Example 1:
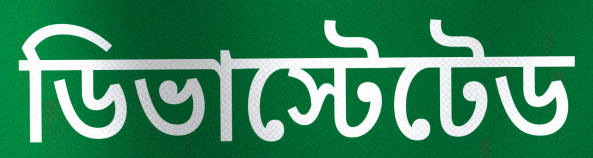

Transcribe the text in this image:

ডিভাস্টেটেড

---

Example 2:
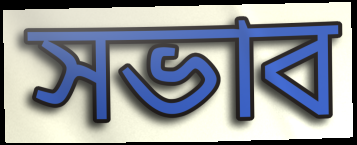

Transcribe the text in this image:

সভাব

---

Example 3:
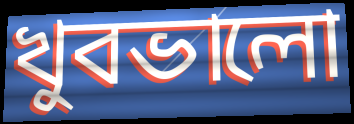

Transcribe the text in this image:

খুবভালো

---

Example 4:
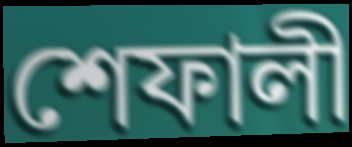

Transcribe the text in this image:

শেফালী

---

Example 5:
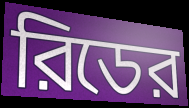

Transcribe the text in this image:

রিডের